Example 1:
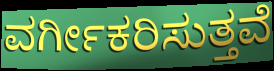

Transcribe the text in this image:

ವರ್ಗೀಕರಿಸುತ್ತವೆ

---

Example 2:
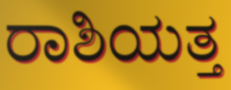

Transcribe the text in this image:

ರಾಶಿಯತ್ತ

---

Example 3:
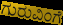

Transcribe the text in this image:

ಗುರುವಿಂಗೆ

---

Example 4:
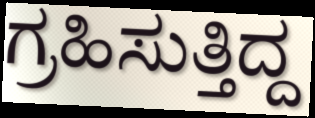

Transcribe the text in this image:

ಗ್ರಹಿಸುತ್ತಿದ್ದ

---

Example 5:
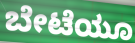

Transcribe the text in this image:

ಬೇಟೆಯೂ